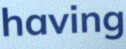
having